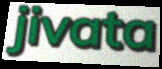
jivata